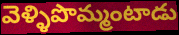
వెళ్ళిపొమ్మంటాడు